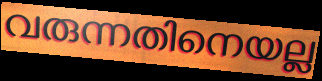
വരുന്നതിനെയല്ല